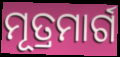
ମୂତ୍ରମାର୍ଗ